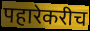
पहारेकरीच